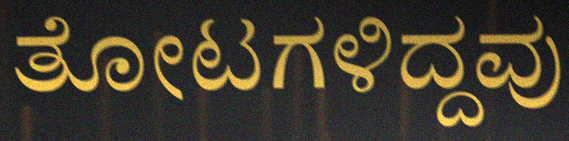
ತೋಟಗಳಿದ್ದವು